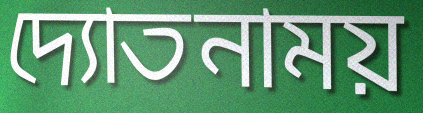
দ্যোতনাময়